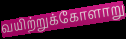
வயிற்றுக்கோளாறு